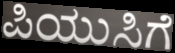
ಪಿಯುಸಿಗೆ